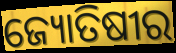
ଜ୍ୟୋତିଷୀର